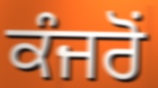
ਕੰਜਰੋਂ